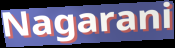
Nagarani